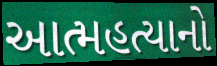
આત્મહત્યાનો